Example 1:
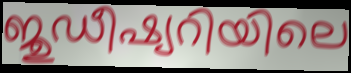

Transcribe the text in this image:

ജുഡീഷ്യറിയിലെ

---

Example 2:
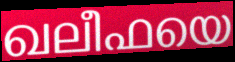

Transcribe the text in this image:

ഖലീഫയെ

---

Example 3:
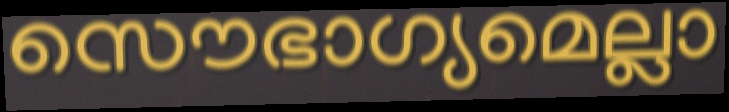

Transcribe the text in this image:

സൌഭാഗ്യമെല്ലാ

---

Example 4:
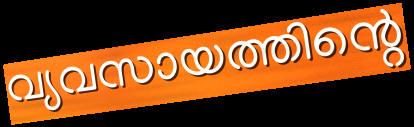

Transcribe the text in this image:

വ്യവസായത്തിന്റെ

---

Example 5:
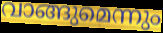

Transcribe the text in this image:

വാങ്ങുമെന്നും